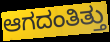
ಆಗದಂತಿತ್ತು